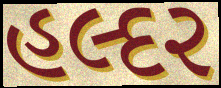
હલ્દર